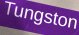
Tungston